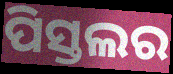
ପିସ୍ତଲର